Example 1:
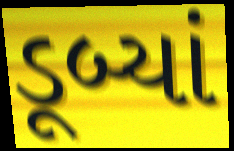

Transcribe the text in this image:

ડૂબ્યાં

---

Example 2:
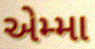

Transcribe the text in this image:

એમ્મા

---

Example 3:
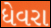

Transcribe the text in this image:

ધેવરા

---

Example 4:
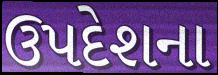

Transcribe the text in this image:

ઉપદેશના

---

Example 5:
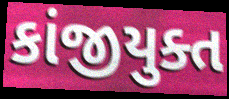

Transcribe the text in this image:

કાંજીયુક્ત